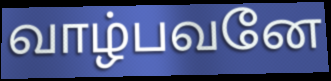
வாழ்பவனே